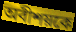
অবীশয়কে